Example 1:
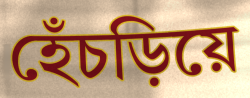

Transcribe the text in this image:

হেঁচড়িয়ে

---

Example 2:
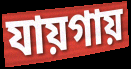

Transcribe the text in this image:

যায়গায়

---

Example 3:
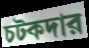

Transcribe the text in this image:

চটকদার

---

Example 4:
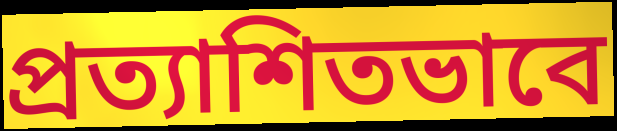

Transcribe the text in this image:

প্রত্যাশিতভাবে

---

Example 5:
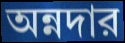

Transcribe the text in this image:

অন্নদার